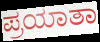
ಪ್ರಯಾತಾ